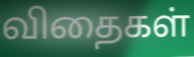
விதைகள்